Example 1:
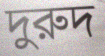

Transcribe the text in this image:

দুরুদ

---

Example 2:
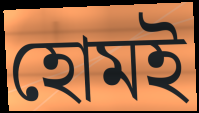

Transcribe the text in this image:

হোমই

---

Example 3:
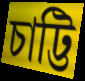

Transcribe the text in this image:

চাট্টি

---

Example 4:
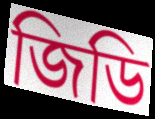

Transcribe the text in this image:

জিডি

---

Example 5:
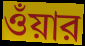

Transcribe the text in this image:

ওঁয়ার